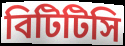
বিটিটিসি